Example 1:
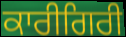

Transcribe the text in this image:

ਕਾਰੀਗਿਰੀ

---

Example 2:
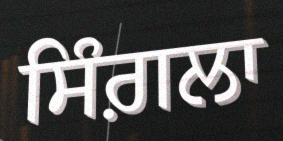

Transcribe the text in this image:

ਸਿੰਗ਼ਲਾ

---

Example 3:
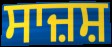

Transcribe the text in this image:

ਸਾਜ਼ਸ਼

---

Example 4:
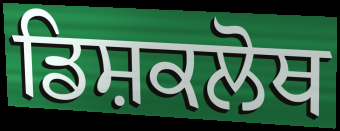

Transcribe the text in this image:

ਡਿਸ਼ਕਲੋਥ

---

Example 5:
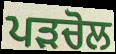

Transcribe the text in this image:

ਪੜਚੋਲ